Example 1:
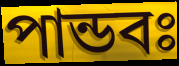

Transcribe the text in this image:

পান্ডবঃ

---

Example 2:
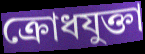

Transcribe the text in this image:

ক্রোধযুক্তা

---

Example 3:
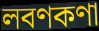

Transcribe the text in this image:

লবণকণা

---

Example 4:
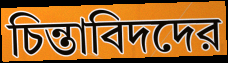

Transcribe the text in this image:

চিন্তাবিদদের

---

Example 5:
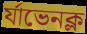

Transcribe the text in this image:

র্যাভেনক্ল